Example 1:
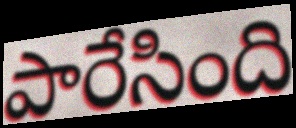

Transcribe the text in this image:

పారేసింది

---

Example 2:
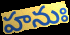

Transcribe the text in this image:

హనుః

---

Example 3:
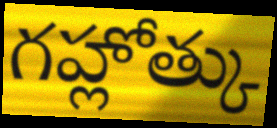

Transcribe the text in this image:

గహ్లోత్కు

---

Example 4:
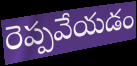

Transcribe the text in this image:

రెప్పవేయడం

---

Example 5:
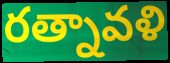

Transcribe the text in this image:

రత్నావళి